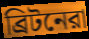
ব্রিটনেরা